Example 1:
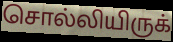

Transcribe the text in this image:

சொல்லியிருக்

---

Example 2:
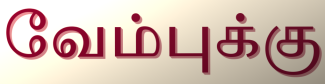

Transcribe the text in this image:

வேம்புக்கு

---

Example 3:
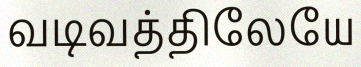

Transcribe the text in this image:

வடிவத்திலேயே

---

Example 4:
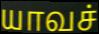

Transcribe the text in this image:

யாவச்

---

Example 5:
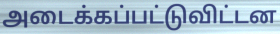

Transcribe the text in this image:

அடைக்கப்பட்டுவிட்டன